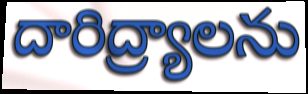
దారిద్ర్యాలను